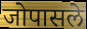
जोपासले